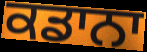
ਕਡਾਨਾ